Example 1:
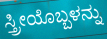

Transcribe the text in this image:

ಸ್ತ್ರೀಯೊಬ್ಬಳನ್ನು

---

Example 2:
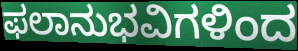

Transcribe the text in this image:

ಫಲಾನುಭವಿಗಳಿಂದ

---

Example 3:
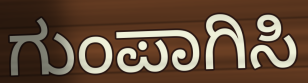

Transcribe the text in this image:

ಗುಂಪಾಗಿಸಿ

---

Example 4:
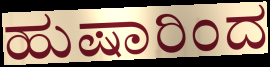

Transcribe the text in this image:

ಹುಷಾರಿಂದ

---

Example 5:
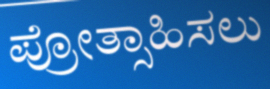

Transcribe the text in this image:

ಪ್ರೋತ್ಸಾಹಿಸಲು